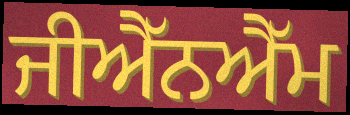
ਜੀਐੱਨਐੱਮ